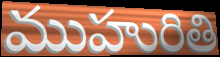
ముహురితి